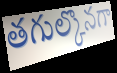
తగుల్కొనగా